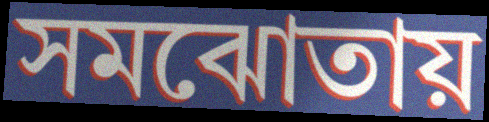
সমঝোতায়